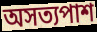
অসত্যপাশ